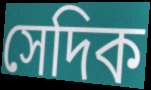
সেদিক